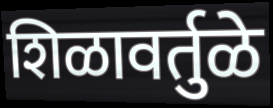
शिळावर्तुळे